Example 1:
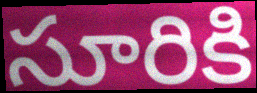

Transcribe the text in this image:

సూరికి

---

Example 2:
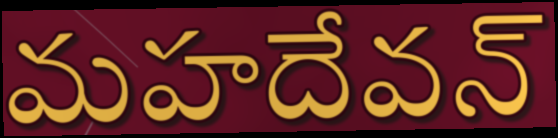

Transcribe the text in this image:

మహదేవన్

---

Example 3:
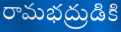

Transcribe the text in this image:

రామభద్రుడికి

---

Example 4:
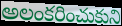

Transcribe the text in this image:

అలంకరించుకుని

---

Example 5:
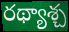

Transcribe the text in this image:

రథ్యాశ్చ